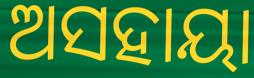
ଅସହାୟା